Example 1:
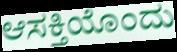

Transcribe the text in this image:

ಆಸಕ್ತಿಯೊಂದು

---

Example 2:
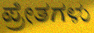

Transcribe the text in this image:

ಪ್ರೇತಗಳು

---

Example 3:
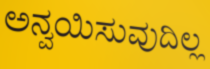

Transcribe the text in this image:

ಅನ್ವಯಿಸುವುದಿಲ್ಲ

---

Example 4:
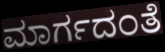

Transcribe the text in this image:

ಮಾರ್ಗದಂತೆ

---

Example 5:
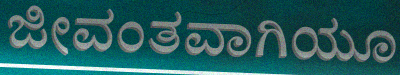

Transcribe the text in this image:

ಜೀವಂತವಾಗಿಯೂ